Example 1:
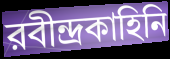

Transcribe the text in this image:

রবীন্দ্রকাহিনি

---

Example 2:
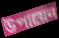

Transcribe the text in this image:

উপায়েন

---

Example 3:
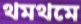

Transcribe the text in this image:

থমথমে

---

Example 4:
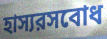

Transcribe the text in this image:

হাস্যরসবোধ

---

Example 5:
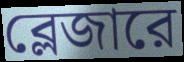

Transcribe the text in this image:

ব্লেজারে